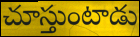
చూస్తుంటాడు